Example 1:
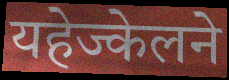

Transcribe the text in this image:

यहेज्केलने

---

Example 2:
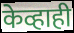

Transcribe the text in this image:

केव्हाही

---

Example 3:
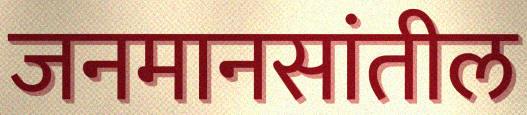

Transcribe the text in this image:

जनमानसांतील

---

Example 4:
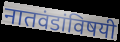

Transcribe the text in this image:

नातवंडांविषयी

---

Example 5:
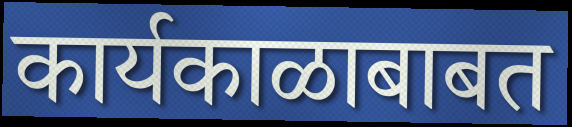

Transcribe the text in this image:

कार्यकाळाबाबत